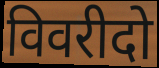
विवरीदो